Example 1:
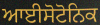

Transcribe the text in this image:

ਆਈਸੋਟੋਨਿਕ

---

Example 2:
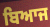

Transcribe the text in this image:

ਬਿਆਜ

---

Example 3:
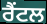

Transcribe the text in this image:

ਰੈਂਟਲ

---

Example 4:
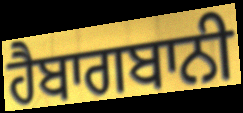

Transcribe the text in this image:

ਹੈਬਾਗਬਾਨੀ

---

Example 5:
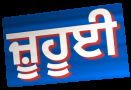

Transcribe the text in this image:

ਜ਼ੂਹੂਈ